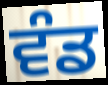
ਵੰਡ